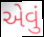
એવું